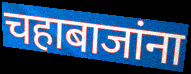
चहाबाजांना